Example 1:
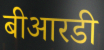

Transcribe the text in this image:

बीआरडी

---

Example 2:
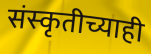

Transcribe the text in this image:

संस्कृतीच्याही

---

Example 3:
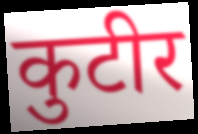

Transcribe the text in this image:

कुटीर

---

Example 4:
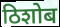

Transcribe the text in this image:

ठिशोब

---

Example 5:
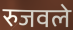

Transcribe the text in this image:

रुजवले